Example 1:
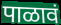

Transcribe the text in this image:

पाळावं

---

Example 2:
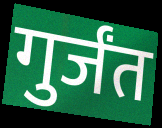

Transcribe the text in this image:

गुर्जंत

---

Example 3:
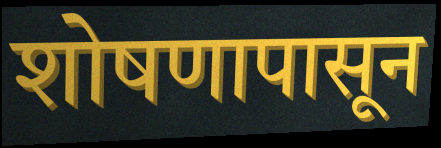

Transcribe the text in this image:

शोषणापासून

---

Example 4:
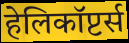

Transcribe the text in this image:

हेलिकॉप्टर्स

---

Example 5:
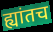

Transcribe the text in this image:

ह्यांतच